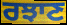
ਰਝਾਣ